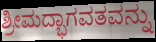
ಶ್ರೀಮದ್ಭಾಗವತವನ್ನು